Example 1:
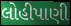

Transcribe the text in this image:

લોહીપાણી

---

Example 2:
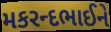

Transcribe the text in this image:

મકરન્દભાઈને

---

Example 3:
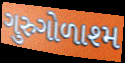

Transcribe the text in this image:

ગુરુગોળાશ્મ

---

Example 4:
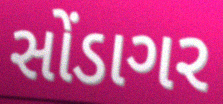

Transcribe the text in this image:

સોંડાગર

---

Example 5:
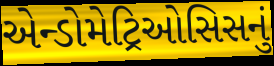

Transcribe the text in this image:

એન્ડોમેટ્રિઓસિસનું